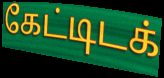
கேட்டிடக்